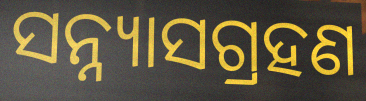
ସନ୍ନ୍ୟାସଗ୍ରହଣ